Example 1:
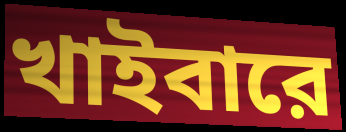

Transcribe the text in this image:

খাইবারে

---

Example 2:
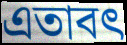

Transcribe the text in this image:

এতাবৎ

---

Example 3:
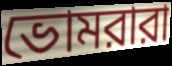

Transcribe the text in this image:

ভোমরারা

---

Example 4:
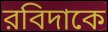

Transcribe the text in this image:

রবিদাকে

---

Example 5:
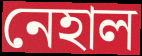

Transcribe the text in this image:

নেহাল